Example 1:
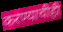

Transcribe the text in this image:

करण्याचीही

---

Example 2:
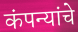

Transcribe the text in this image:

कंपन्यांचे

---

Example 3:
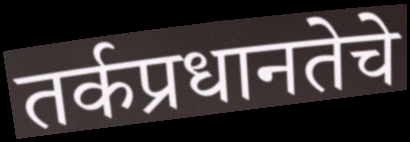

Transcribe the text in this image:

तर्कप्रधानतेचे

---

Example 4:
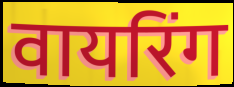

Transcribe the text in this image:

वायरिंग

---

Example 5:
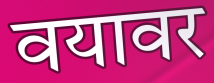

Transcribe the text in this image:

वयावर